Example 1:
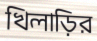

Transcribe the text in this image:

খিলাড়ির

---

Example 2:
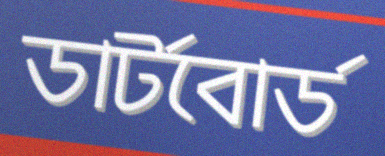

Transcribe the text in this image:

ডার্টবোর্ড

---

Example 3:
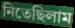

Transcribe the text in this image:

নিতেছিলাম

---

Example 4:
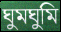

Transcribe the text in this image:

ঘুমঘুমি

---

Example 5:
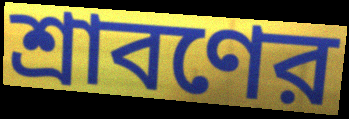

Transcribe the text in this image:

শ্রাবণের